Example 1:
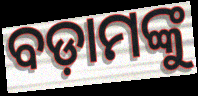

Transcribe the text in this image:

ବଡ଼ାମଙ୍କୁ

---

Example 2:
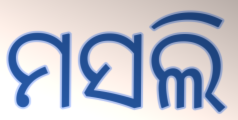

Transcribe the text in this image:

ମସଲି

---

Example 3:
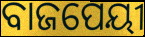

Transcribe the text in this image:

ବାଜପେୟୀ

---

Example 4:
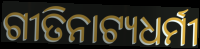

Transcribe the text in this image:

ଗୀତିନାଟ୍ୟଧର୍ମୀ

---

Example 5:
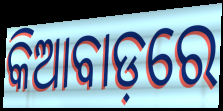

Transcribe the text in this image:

କିଆବାଡ଼ରେ